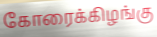
கோரைக்கிழங்கு